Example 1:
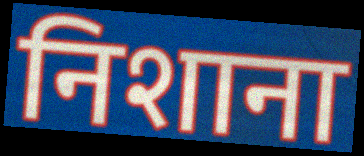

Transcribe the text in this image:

निशाना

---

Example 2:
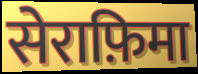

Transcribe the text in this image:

सेराफ़िमा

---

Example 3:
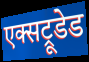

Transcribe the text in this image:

एक्सट्रूडेड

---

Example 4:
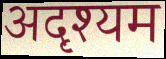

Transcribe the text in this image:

अदृश्यम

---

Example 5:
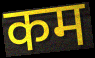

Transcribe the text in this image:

कम